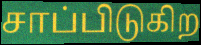
சாப்பிடுகிற